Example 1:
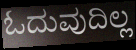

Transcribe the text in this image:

ಓದುವುದಿಲ್ಲ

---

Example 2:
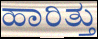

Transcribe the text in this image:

ಹಾರಿತ್ತು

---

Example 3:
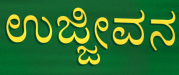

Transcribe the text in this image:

ಉಜ್ಜೀವನ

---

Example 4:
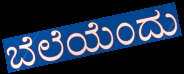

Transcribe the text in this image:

ಬೆಲೆಯೆಂದು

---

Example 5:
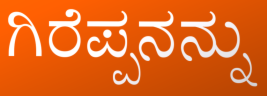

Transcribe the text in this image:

ಗಿರೆಪ್ಪನನ್ನು